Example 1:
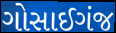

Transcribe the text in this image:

ગોસાઈગંજ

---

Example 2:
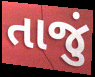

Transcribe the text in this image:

તાજું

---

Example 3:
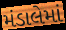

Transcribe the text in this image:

મંડાલેમાં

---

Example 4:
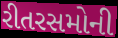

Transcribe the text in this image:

રીતરસમોની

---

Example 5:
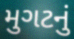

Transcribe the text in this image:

મુગટનું